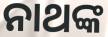
ନାଥଙ୍କ